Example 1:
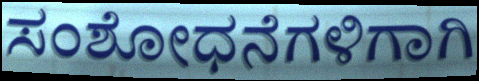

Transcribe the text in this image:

ಸಂಶೋಧನೆಗಳಿಗಾಗಿ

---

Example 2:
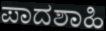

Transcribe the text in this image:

ಪಾದಶಾಹಿ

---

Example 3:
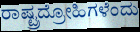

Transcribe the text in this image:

ರಾಷ್ಟ್ರದ್ರೋಹಿಗಳೆಂದು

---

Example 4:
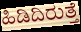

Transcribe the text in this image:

ಹಿಡಿದಿರುತ್ತೆ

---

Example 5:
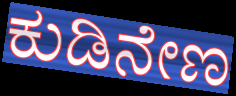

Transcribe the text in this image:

ಕುಡಿನೇಣ